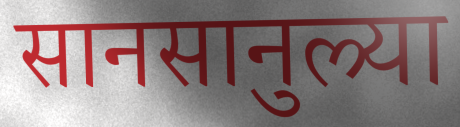
सानसानुल्या